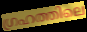
ഗ്രഹത്തിലെ